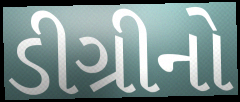
ડીગ્રીનો